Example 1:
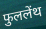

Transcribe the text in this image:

फुललेंथ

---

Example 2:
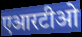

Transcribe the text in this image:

एआरटीओ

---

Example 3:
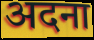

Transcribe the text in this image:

अदना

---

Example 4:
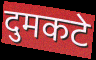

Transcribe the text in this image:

दुमकटे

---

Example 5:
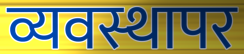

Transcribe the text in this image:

व्यवस्थापर